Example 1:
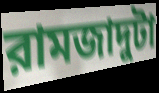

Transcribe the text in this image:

রামজাদুটা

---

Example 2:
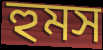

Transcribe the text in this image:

হুমস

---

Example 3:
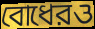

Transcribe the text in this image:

বোধেরও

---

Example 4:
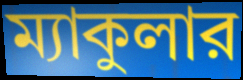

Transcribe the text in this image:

ম্যাকুলার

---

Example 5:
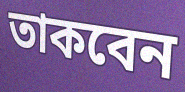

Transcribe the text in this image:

তাকবেন